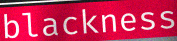
blackness